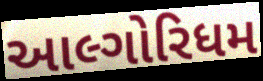
આલ્ગોરિધમ